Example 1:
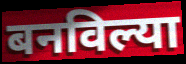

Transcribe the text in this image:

बनविल्या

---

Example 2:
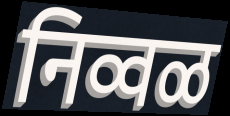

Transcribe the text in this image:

निव्वळ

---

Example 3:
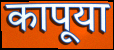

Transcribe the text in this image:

कापूया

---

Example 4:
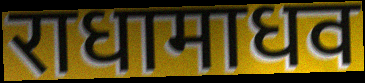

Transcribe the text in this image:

राधामाधव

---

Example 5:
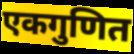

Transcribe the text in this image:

एकगुणित